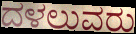
ದಳಲುವರು